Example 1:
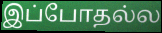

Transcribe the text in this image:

இப்போதல்ல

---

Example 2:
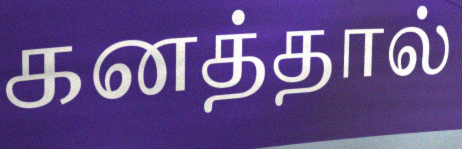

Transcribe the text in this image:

கனத்தால்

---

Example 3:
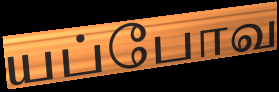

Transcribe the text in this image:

யப்போவ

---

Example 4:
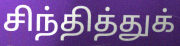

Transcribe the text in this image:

சிந்தித்துக்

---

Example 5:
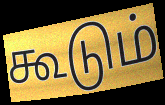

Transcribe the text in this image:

கூடும்